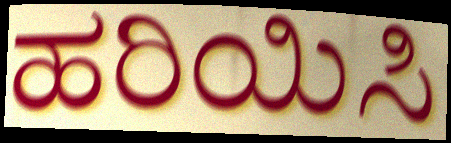
ಹರಿಯಿಸಿ